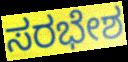
ಸರಭೇಶ